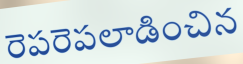
రెపరెపలాడించిన